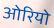
ओरियो